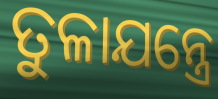
ତୁଳାଯନ୍ତ୍ରେ